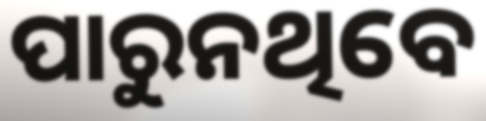
ପାରୁନଥିବେ